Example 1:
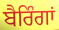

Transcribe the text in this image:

ਬੈਰਿੰਗਾਂ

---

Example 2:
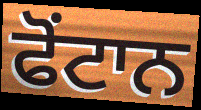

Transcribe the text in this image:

ਫੋਂਟਾਨ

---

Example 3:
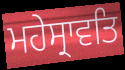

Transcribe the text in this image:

ਮਹੇਸ੍ਰਾਵਤਿ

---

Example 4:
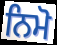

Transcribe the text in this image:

ਨਿਮੋ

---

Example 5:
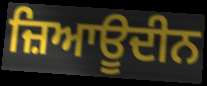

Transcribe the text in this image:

ਜ਼ਿਆਊਦੀਨ